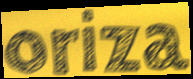
oriza